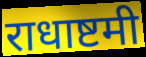
राधाष्टमी